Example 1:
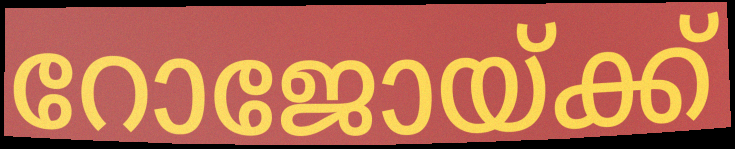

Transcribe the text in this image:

റോജോയ്ക്ക്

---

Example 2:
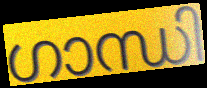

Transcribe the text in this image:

ഗാന്ധി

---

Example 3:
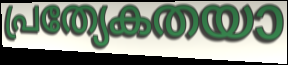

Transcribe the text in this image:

പ്രത്യേകതയാ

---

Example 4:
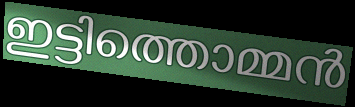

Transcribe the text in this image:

ഇട്ടിത്തൊമ്മൻ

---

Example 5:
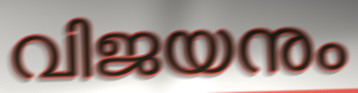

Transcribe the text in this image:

വിജയനും